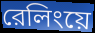
রেলিংয়ে